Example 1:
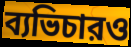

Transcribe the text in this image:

ব্যভিচারও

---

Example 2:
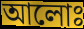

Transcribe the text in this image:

আলোঃ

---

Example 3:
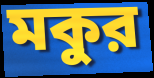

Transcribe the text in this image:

মকুর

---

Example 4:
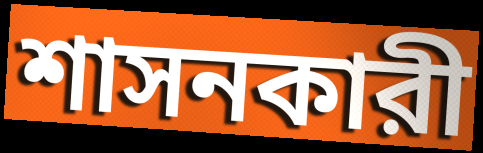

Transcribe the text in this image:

শাসনকারী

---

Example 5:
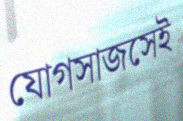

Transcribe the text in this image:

যোগসাজসেই